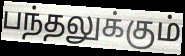
பந்தலுக்கும்